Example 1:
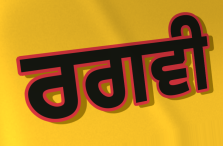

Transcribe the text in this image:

ਰਗਵੀ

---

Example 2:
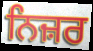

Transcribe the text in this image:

ਨਿਜ਼ਰ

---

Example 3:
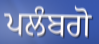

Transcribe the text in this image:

ਪਲੰਬਗੋ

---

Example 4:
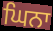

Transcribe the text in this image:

ਘਿਨਾ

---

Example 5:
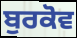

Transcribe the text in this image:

ਬੁਰਕੋਵ